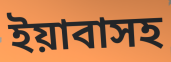
ইয়াবাসহ